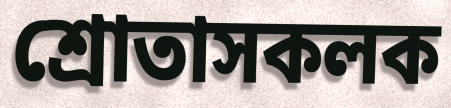
শ্ৰোতাসকলক